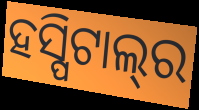
ହସ୍ପିଟାଲ୍‌ର